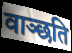
वाञ्छति